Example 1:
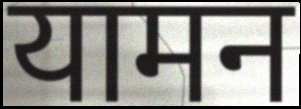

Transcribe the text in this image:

यामन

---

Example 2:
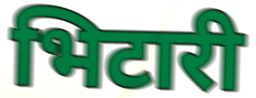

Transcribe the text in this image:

भिटारी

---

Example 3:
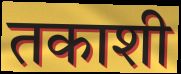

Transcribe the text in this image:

तकाशी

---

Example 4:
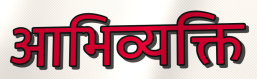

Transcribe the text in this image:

आभिव्यक्ति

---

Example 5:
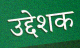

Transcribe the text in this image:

उद्देशक